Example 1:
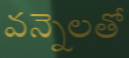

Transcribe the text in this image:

వన్నెలతో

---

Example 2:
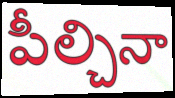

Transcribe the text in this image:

పీల్చినా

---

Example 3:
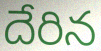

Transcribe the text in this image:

దేరిన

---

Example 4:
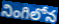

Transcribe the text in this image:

నింగిలోన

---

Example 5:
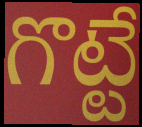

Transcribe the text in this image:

గొట్టే